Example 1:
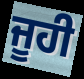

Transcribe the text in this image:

ਜੂਹੀ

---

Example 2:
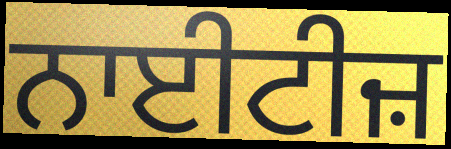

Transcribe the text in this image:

ਨਾਈਟੀਜ਼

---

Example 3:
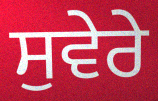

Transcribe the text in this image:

ਸੁਵੇਰੇ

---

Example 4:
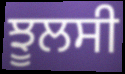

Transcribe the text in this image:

ਝੂਲਸੀ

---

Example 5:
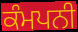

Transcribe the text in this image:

ਕੰਮਪਨੀ